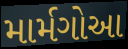
માર્મગોઆ